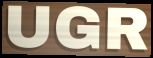
UGR